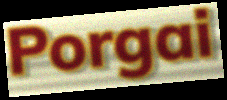
Porgai